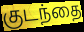
குடந்தை